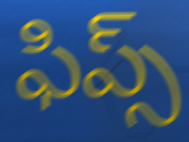
ఫిప్స్